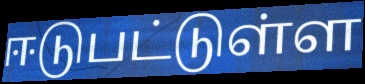
ஈடுபட்டுள்ள